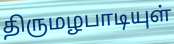
திருமழபாடியுள்